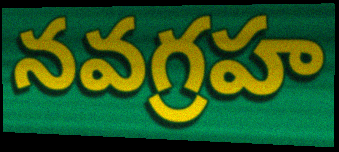
నవగ్రహ